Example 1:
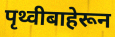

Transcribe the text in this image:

पृथ्वीबाहेरून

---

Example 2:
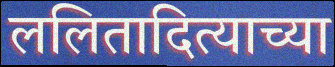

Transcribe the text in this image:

ललितादित्याच्या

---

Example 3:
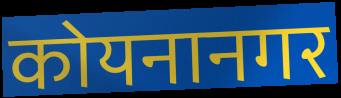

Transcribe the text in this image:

कोयनानगर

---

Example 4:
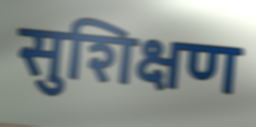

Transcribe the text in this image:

सुशिक्षण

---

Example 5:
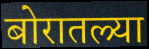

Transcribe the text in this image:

बोरातल्या